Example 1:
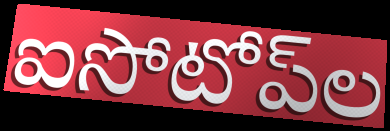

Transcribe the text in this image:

ఐసోటోప్‌ల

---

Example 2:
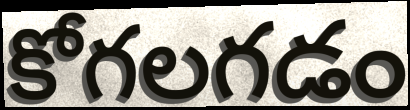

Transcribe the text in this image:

కోగలగడం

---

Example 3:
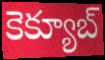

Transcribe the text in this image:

కెక్యూబ్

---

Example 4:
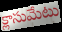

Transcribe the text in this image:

క్లాసుమేటు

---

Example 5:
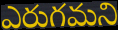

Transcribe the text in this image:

ఎరుగమని